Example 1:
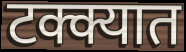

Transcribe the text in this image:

टक्क्यात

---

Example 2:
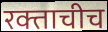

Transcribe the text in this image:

रक्ताचीच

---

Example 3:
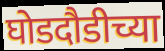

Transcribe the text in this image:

घोडदौडीच्या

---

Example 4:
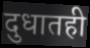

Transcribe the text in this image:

दुधातही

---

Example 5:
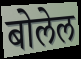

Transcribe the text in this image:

बोलेल